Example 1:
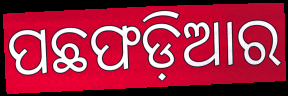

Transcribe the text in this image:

ପଛଫଡ଼ିଆର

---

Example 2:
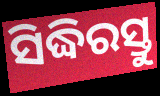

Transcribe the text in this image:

ସିଦ୍ଧିରସ୍ତୁ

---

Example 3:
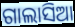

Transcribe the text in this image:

ଗାଲାସିଆ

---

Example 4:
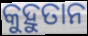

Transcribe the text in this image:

କୁହୁତାନ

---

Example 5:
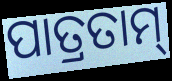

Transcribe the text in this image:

ପାତ୍ରତାମ୍